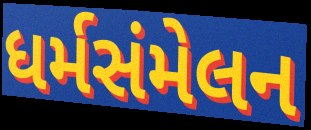
ધર્મસંમેલન